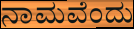
ನಾಮವೆಂದು